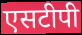
एसटीपी